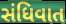
સંધિવાત